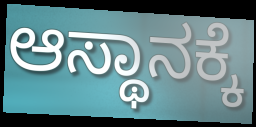
ಆಸ್ಥಾನಕ್ಕೆ